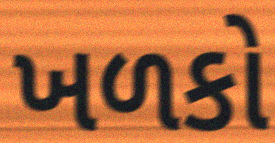
ખળકો